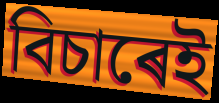
বিচাৰেই